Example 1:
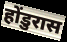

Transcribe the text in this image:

होंडुरास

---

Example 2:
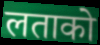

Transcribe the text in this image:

लताको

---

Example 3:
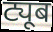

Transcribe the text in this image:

ट्यूब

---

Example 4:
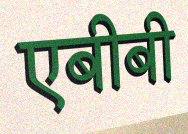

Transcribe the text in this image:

एबीबी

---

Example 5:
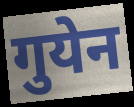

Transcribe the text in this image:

गुयेन